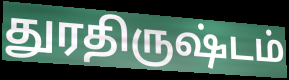
துரதிருஷ்டம்